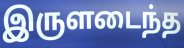
இருளடைந்த